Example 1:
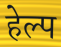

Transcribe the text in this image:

हेल्प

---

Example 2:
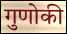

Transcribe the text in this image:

गुणोकी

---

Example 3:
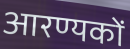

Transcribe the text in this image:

आरण्यकों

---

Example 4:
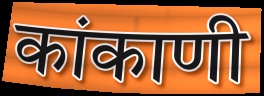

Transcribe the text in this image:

कांकाणी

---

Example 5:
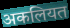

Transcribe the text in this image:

अकलियत